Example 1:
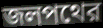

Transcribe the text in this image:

জলপথের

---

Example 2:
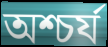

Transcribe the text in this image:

অশ্চর্য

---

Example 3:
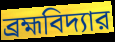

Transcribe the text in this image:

ব্রহ্মবিদ্যার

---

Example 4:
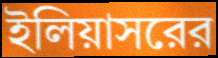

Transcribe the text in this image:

ইলিয়াসরের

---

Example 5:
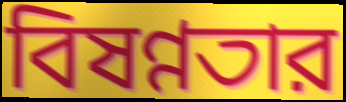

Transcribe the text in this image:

বিষণ্নতার